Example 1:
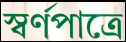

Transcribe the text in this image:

স্বর্ণপাত্রে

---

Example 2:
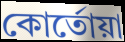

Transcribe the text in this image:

কোর্তোয়া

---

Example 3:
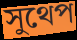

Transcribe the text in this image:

সুথেপ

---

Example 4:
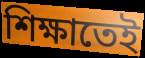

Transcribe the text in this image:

শিক্ষাতেই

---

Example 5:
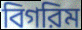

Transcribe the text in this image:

বিগরিম